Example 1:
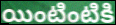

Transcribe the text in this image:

యింటింటికి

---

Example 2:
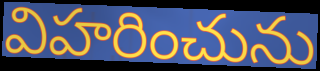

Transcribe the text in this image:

విహరించును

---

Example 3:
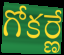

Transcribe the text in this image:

గోకర్ణే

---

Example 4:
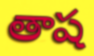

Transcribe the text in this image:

తాష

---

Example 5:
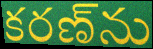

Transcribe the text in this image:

కరణ్‌ను